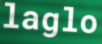
laglo